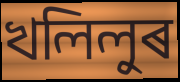
খলিলুৰ